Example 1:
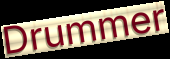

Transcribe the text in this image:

Drummer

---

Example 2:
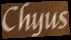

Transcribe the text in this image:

Chyus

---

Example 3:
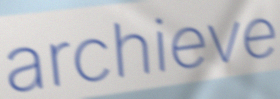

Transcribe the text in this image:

archieve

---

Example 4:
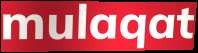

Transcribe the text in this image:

mulaqat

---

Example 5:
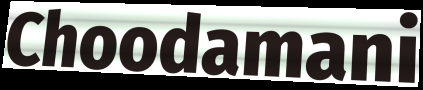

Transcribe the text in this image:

Choodamani